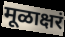
मूळाक्षरं